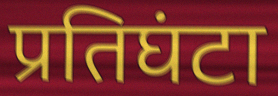
प्रतिघंटा